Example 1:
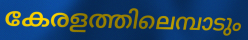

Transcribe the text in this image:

കേരളത്തിലെമ്പാടും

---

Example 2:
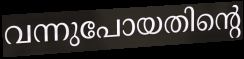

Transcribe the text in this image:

വന്നുപോയതിന്റെ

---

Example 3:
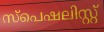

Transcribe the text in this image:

സ്പെഷലിസ്റ്റ്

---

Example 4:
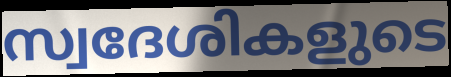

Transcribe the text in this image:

സ്വദേശികളുടെ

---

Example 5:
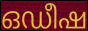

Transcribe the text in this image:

ഒഡീഷ